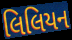
લિલિયન